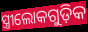
ସ୍ତ୍ରୀଲୋକଗୁଡ଼ିକ